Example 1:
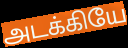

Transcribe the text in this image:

அடக்கியே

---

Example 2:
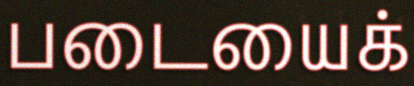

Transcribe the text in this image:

படையைக்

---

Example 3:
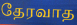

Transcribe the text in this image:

தேரவாத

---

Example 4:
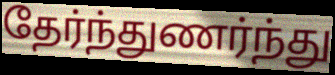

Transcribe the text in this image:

தேர்ந்துணர்ந்து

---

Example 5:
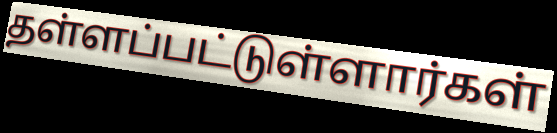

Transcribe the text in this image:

தள்ளப்பட்டுள்ளார்கள்